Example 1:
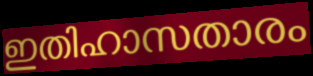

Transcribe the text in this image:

ഇതിഹാസതാരം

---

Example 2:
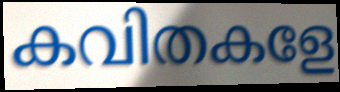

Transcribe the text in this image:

കവിതകളേ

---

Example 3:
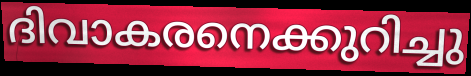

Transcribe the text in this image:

ദിവാകരനെക്കുറിച്ചു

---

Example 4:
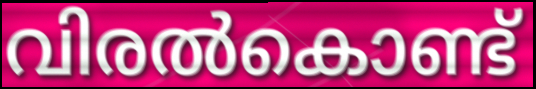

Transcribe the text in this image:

വിരൽകൊണ്ട്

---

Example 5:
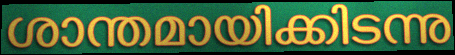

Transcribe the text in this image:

ശാന്തമായിക്കിടന്നു